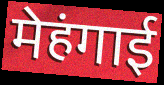
मेहंगाई